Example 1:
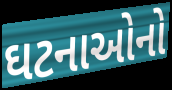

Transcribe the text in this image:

ઘટનાઓનો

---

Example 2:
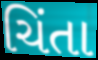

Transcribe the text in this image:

ચિંતા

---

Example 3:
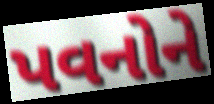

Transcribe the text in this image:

પવનોને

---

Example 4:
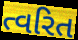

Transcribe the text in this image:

ત્વરિત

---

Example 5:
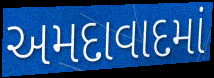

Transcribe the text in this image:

અમદાવાદમાં